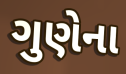
ગુણેના